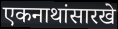
एकनाथांसारखे